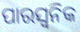
ପାରସ୍ୱନିକ